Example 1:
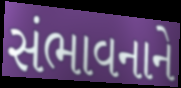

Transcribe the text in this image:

સંભાવનાને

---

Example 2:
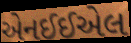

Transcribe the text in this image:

એનઈઈએલ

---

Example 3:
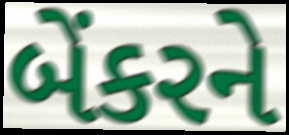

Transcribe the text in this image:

બેંકરને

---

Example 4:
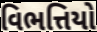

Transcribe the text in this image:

વિભત્તિયો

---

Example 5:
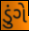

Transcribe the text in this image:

ડુંગે